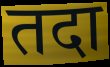
तदा